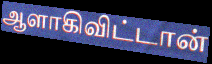
ஆளாகிவிட்டான்